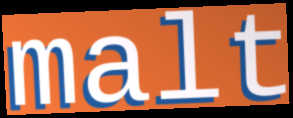
malt